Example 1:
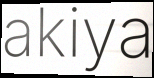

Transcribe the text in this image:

akiya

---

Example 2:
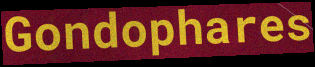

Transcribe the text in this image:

Gondophares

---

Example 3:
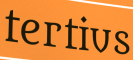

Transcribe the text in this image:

tertius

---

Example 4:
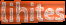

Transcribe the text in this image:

lihites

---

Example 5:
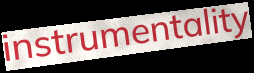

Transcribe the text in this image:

instrumentality